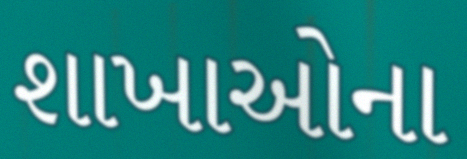
શાખાઓના